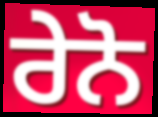
ਰੇਨੋ